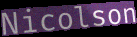
Nicolson